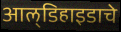
आल्डिहाइडाचे